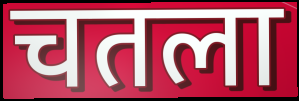
चतला